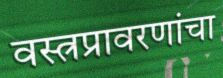
वस्त्रप्रावरणांचा